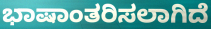
ಭಾಷಾಂತರಿಸಲಾಗಿದೆ